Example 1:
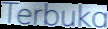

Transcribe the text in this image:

Terbuka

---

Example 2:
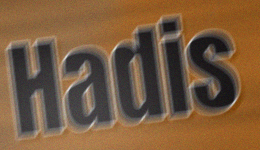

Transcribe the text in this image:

Hadis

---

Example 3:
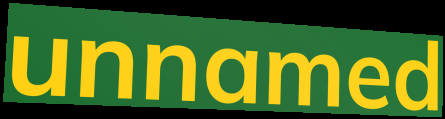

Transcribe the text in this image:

unnamed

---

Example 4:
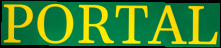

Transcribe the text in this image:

PORTAL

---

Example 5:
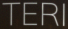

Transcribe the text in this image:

TERI